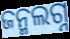
ଜନ୍ମଲଗ୍ନ